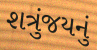
શત્રુંજયનું